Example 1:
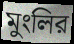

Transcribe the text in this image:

মুংলির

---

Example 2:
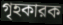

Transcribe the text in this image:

গৃহকারক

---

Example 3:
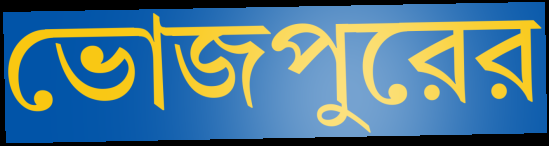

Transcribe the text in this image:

ভোজপুরের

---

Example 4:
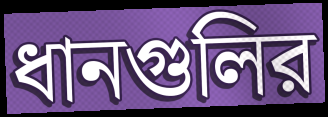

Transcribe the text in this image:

ধানগুলির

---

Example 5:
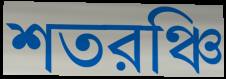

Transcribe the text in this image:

শতরঞ্চি